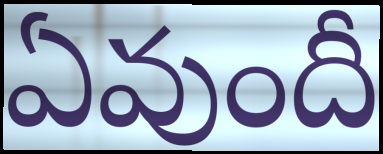
ఏవుందీ